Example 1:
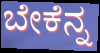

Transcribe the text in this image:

ಬೇಕೆನ್ನ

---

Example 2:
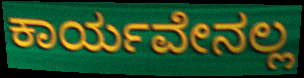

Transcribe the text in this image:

ಕಾರ್ಯವೇನಲ್ಲ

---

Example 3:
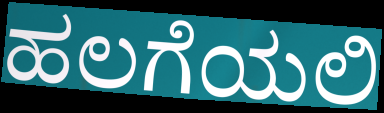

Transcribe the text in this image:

ಹಲಗೆಯಲಿ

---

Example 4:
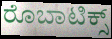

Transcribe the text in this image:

ರೊಬಾಟಿಕ್ಸ್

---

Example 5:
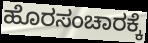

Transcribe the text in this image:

ಹೊರಸಂಚಾರಕ್ಕೆ